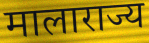
मालाराज्य